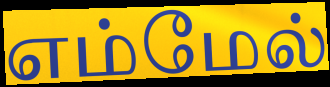
எம்மேல்